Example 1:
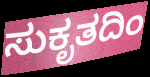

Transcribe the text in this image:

ಸುಕೃತದಿಂ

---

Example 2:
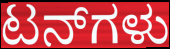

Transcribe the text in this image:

ಟನ್‌ಗಳು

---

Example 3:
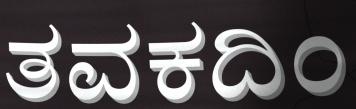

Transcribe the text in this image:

ತವಕದಿಂ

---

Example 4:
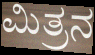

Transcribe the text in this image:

ಮಿತ್ರನ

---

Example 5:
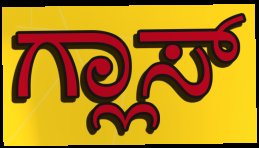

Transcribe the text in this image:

ಗ್ಲಾಸ್